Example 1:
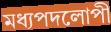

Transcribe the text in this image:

মধ্যপদলোপী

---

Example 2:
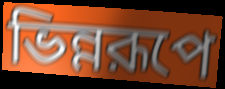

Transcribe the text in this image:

ভিন্নরূপে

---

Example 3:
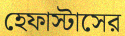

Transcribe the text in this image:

হেফাস্টাসের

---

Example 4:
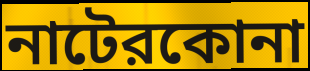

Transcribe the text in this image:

নাটেরকোনা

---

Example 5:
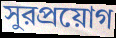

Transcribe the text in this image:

সুরপ্রয়োগ